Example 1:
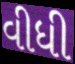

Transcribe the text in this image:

વીધી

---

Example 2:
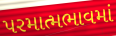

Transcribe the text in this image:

પરમાત્મભાવમાં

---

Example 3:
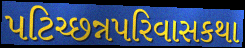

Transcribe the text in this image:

પટિચ્છન્નપરિવાસકથા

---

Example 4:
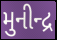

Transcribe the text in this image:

મુનીન્દ્ર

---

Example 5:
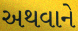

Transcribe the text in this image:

અથવાને